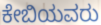
ಕೇಬಿಯವರು